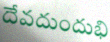
దేవదుందుభి